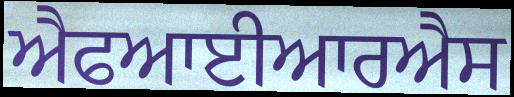
ਐਫਆਈਆਰਐਸ